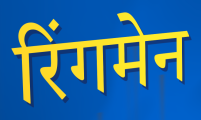
रिंगमेन